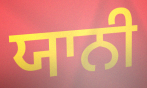
ਯਾਨੀ